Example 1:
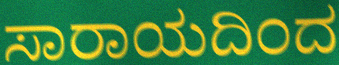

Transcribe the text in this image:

ಸಾರಾಯದಿಂದ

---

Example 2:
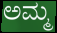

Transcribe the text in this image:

ಅಮ್ಮ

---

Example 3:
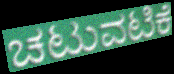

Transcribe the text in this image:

ಚಟುವಟಿಕೆ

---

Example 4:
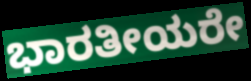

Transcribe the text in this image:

ಭಾರತೀಯರೇ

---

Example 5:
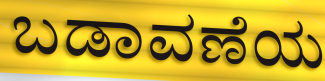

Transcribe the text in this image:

ಬಡಾವಣೆಯ